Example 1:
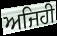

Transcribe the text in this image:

ਅਜਿਹੀ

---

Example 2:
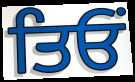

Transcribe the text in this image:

ਤਿਓਂ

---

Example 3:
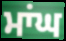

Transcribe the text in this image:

ਮਾਂਘ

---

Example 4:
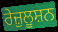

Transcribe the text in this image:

ਰੇਜ਼ੁਲੂਸ਼ਨ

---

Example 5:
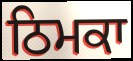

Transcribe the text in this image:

ਠਿਮਕਾ